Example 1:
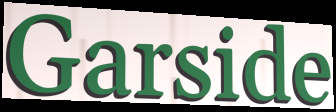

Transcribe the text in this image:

Garside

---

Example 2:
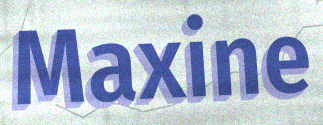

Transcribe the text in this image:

Maxine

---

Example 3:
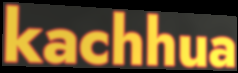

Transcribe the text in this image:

kachhua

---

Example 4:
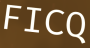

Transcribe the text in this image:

FICQ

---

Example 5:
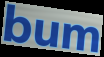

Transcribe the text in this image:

bum